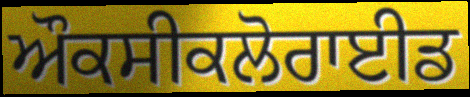
ਔਕਸੀਕਲੋਰਾਈਡ